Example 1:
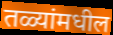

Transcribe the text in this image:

तळ्यांमधील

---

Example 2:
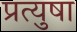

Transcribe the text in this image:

प्रत्युषा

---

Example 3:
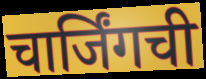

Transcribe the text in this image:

चार्जिंगची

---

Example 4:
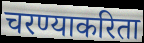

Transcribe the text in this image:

चरण्याकरिता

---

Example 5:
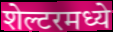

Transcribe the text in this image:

शेल्टरमध्ये